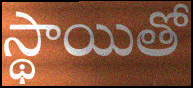
స్థాయితో